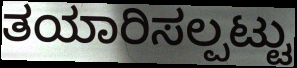
ತಯಾರಿಸಲ್ಪಟ್ಟು